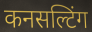
कनसल्टिंग